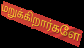
மறுக்கிறார்களே